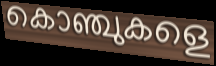
കൊഞ്ചുകളെ